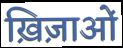
ख़िज़ाओं